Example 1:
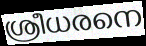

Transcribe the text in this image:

ശ്രീധരനെ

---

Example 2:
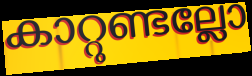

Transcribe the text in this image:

കാറ്റുണ്ടല്ലോ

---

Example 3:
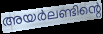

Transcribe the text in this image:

അയർലണ്ടിന്റെ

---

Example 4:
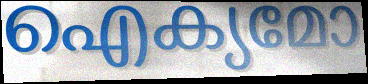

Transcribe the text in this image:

ഐക്യമോ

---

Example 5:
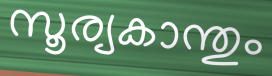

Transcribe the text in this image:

സൂര്യകാന്തും